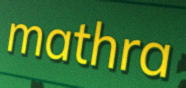
mathra